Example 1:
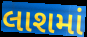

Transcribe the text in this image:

લાશમાં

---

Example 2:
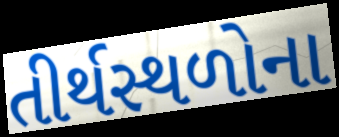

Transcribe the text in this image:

તીર્થસ્થળોના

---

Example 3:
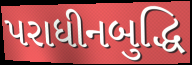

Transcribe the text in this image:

પરાધીનબુદ્ધિ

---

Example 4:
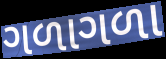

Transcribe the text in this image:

ગળાગળા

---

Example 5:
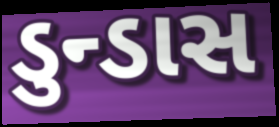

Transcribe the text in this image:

ડુન્ડાસ